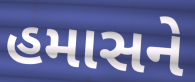
હમાસને